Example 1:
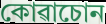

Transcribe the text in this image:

কোৱাচোন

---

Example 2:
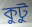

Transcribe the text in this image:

কুটু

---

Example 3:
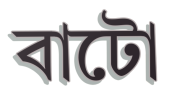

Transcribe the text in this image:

বাটো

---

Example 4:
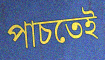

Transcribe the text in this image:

পাচতেই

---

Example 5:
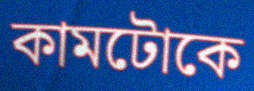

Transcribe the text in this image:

কামটোকে